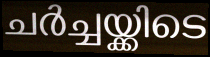
ചർച്ചയ്ക്കിടെ